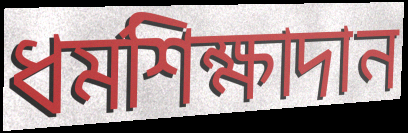
ধর্মশিক্ষাদান